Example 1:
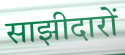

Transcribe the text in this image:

साझीदारों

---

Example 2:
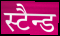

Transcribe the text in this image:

स्टैन्ड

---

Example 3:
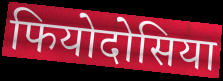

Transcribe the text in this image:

फियोदोसिया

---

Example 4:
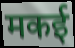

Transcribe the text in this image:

मकई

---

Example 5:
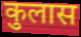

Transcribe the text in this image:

कुलास